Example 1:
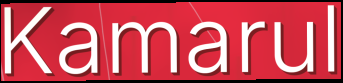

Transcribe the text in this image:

Kamarul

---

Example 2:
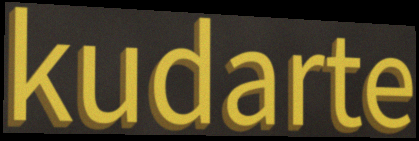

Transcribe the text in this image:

kudarte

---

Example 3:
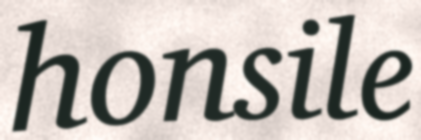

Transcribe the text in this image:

honsile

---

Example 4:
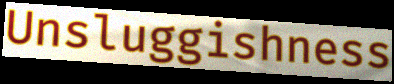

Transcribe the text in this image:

Unsluggishness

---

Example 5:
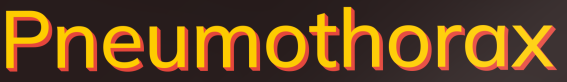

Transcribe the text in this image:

Pneumothorax